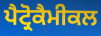
ਪੈਟ੍ਰੋਕੈਮੀਕਲ